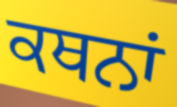
ਕਥਨਾਂ